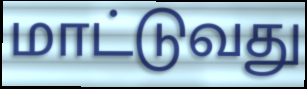
மாட்டுவது